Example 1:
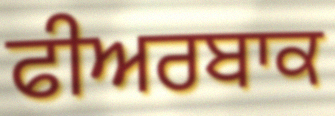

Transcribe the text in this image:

ਫੀਅਰਬਾਕ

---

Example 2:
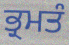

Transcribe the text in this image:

ਭ੍ਰਮਤੰ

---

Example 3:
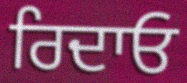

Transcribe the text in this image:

ਰਿਦਾਓ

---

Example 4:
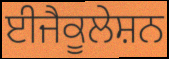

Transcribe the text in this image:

ਈਜੈਕੂਲੇਸ਼ਨ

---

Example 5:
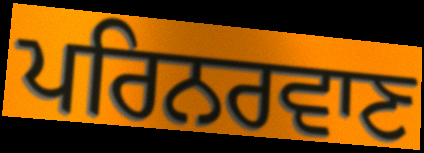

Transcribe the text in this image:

ਪਰਿਨਰਵਾਣ